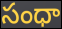
సంధా